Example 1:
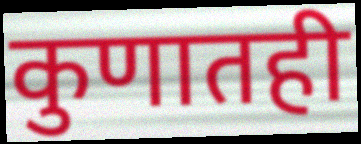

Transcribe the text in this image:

कुणातही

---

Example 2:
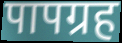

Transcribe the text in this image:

पापग्रह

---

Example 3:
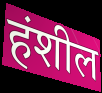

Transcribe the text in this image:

हंशील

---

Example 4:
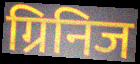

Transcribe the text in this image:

ग्रिनिज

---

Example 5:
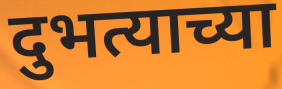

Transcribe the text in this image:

दुभत्याच्या